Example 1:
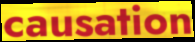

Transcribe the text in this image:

causation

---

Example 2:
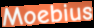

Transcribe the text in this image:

Moebius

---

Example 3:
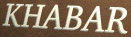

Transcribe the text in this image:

KHABAR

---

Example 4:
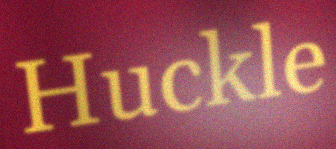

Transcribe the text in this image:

Huckle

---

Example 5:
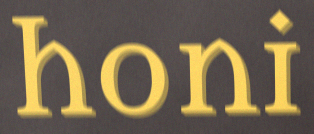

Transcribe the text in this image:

honi